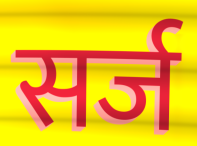
सर्ज